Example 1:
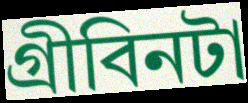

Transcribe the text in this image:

গ্রীবিনটা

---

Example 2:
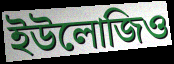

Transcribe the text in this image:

ইউলোজিও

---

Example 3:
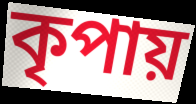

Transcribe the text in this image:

কৃপায়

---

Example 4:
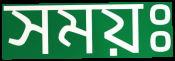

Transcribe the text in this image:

সময়ঃ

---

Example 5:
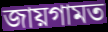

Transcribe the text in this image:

জায়গামত